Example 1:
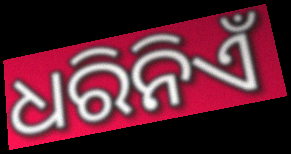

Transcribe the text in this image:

ଧରିନିଏଁ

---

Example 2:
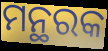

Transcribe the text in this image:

ମନ୍ଥରକ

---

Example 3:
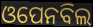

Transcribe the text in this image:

ଓପେନବିଲ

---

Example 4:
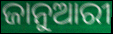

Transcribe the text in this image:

ଜାନୁଆରୀ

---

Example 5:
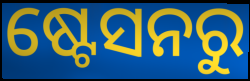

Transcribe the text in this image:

ଷ୍ଟେସନରୁ